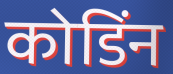
कोडिंन